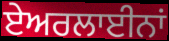
ਏਅਰਲਾਈਨਾਂ